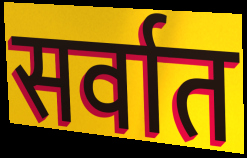
सर्वात